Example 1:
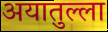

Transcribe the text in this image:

अयातुल्ला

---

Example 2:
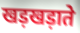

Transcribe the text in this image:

खड़खड़ाते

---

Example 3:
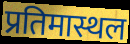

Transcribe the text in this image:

प्रतिमास्थल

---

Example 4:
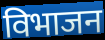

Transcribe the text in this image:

विभाजन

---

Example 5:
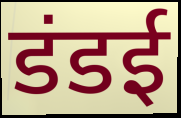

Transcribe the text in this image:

डंडई